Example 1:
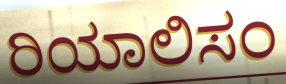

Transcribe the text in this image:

ರಿಯಾಲಿಸಂ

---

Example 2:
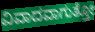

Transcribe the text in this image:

ವಿವಾದವಾಗುತ್ತೋ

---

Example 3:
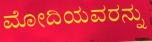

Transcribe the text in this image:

ಮೋದಿಯವರನ್ನು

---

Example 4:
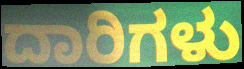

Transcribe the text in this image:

ದಾರಿಗಳು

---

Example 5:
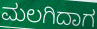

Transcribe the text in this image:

ಮಲಗಿದಾಗ